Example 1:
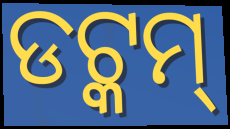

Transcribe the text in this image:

ଡଟ୍କମ୍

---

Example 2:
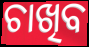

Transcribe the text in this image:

ଚାଖିବ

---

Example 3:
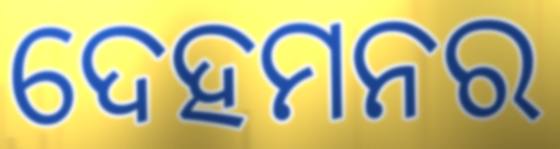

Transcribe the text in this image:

ଦେହମନର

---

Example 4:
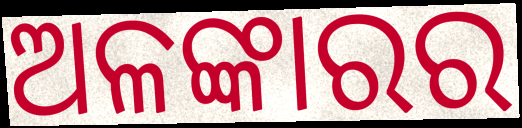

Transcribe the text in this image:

ଅଳଙ୍କାରର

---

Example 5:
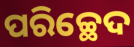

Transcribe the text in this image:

ପରିଚ୍ଛେଦ